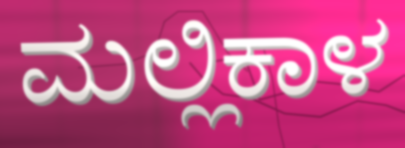
ಮಲ್ಲಿಕಾಳ